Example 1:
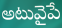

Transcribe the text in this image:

అటువైపే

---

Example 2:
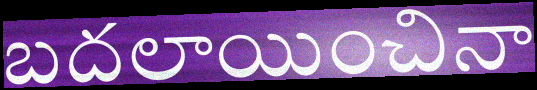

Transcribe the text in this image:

బదలాయించినా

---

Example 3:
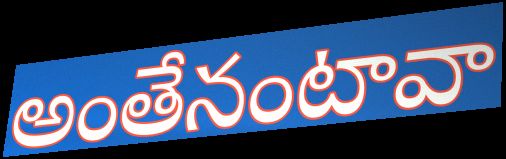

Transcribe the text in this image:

అంతేనంటావా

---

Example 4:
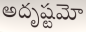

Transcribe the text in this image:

అదృష్టమో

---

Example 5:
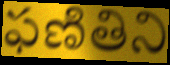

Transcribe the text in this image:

ఫణితిని